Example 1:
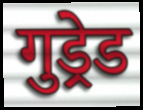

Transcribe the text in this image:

गुड्रेड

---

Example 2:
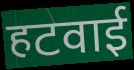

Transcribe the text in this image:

हटवाई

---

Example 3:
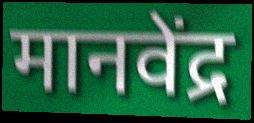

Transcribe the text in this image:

मानवेंद्र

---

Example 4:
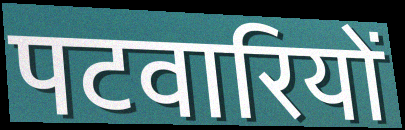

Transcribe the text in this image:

पटवारियों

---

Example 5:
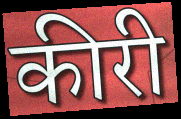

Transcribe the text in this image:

कीरी